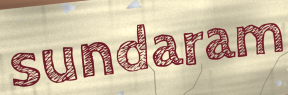
sundaram